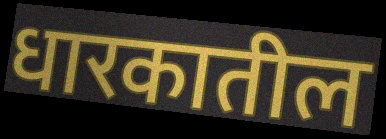
धारकातील